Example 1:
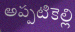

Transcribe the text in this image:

అప్పటికెల్లి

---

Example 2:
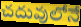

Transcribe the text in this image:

చదువులోనే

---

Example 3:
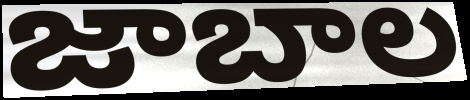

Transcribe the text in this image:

జాబాల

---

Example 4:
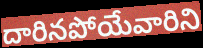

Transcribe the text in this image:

దారినపోయేవారిని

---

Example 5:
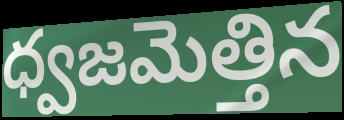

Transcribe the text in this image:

ధ్వజమెత్తిన